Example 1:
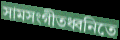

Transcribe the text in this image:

সামসংগীতধ্বনিতে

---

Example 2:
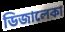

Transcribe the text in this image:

ডিজালেকা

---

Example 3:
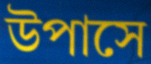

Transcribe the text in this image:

উপাসে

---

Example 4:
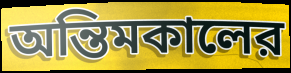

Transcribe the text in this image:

অন্তিমকালের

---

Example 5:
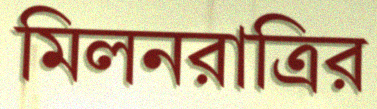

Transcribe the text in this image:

মিলনরাত্রির